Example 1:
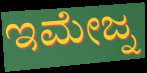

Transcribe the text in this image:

ಇಮೇಜ್ನ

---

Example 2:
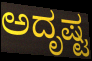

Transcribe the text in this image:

ಅದೃಷ್ಟ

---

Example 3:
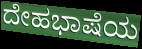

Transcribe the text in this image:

ದೇಹಭಾಷೆಯ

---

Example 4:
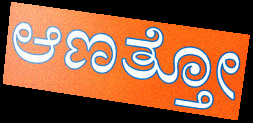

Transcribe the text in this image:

ಆಣತ್ತೋ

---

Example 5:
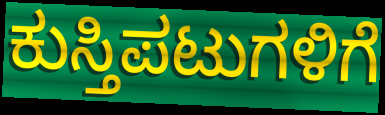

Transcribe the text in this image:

ಕುಸ್ತಿಪಟುಗಳಿಗೆ